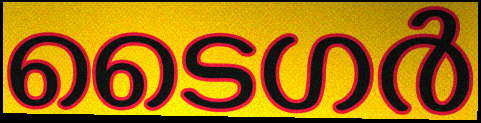
ടൈഗർ